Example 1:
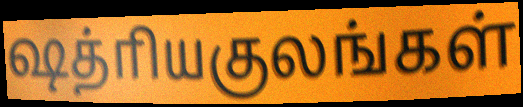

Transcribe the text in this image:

ஷத்ரியகுலங்கள்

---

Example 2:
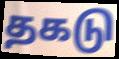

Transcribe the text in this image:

தகடு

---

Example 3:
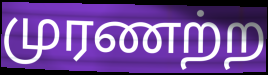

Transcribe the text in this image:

முரணற்ற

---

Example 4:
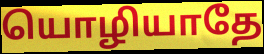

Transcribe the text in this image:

யொழியாதே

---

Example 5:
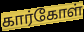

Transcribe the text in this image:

கார்கோள்